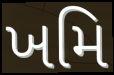
ખમિ